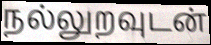
நல்லுறவுடன்